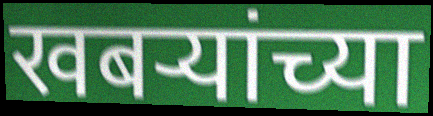
खबऱ्यांच्या